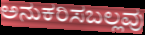
ಅನುಕರಿಸಬಲ್ಲವು